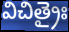
విచిత్రైః